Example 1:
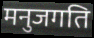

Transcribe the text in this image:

मनुजगति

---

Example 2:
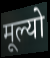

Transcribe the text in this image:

मूल्यो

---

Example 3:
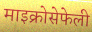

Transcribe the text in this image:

माइक्रोसेफेली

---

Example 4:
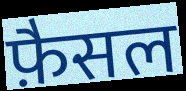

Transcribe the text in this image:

फ़ैसल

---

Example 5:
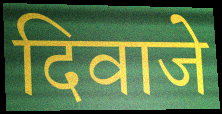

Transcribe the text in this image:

दिवाजे